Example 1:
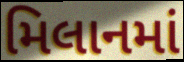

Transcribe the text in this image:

મિલાનમાં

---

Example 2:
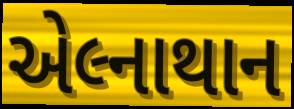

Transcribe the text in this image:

એલ્નાથાન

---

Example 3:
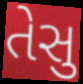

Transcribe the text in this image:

તેસુ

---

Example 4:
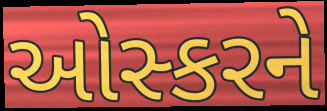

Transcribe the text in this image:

ઓસ્કરને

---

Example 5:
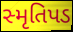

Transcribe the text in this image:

સ્મૃતિપડ